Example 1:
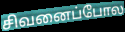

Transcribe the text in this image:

சிவனைப்போல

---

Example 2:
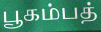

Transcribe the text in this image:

பூகம்பத்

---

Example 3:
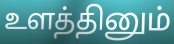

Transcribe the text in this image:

உளத்தினும்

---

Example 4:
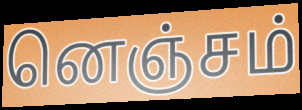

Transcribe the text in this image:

னெஞ்சம்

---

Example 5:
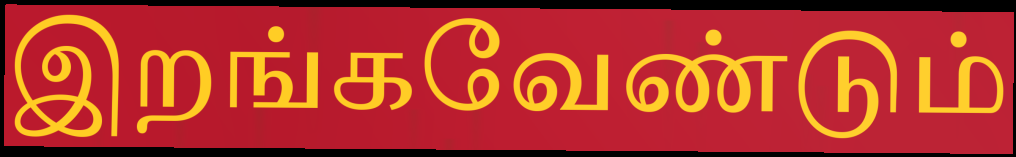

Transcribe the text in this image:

இறங்கவேண்டும்